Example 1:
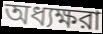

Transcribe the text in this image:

অধ্যক্ষরা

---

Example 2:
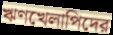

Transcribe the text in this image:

ঋণখেলাপিদের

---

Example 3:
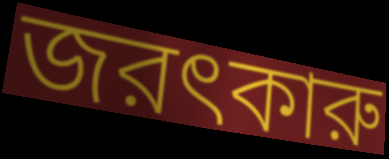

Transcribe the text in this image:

জরৎকারু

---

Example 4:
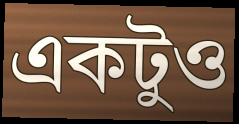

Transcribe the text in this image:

একটুও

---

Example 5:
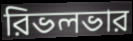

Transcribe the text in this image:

রিভলভার